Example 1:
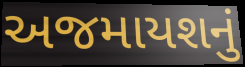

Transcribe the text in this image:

અજમાયશનું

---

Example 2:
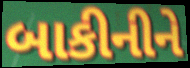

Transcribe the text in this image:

બાકીનીને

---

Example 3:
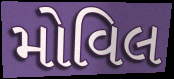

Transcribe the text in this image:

મોવિલ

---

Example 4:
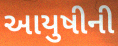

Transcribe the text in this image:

આયુષીની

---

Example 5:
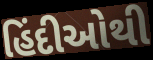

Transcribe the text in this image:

હિંદીઓથી